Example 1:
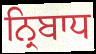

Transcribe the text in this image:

ਨ੍ਰਿਬਾਧ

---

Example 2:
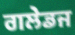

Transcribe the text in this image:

ਗਲੇਡਜ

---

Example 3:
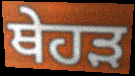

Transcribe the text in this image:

ਥੇਹੜ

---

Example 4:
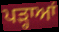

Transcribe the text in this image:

ਪੜ੍ਹਾਆਂ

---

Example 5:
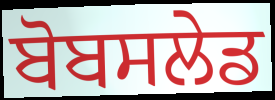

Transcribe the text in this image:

ਬੋਬਸਲੇਡ